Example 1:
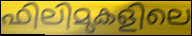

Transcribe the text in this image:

ഫിലിമുകളിലെ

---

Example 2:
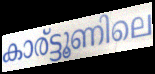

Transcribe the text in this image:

കാര്ട്ടൂണിലെ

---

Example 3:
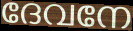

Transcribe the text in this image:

ദേവനേ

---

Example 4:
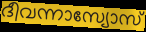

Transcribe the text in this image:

ദീവന്നാസ്യോസ്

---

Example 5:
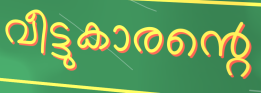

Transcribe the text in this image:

വീട്ടുകാരന്റെ